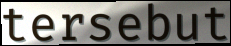
tersebut